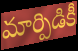
మార్పిడికీ